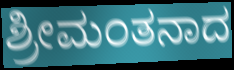
ಶ್ರೀಮಂತನಾದ